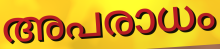
അപരാധം